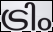
ട്രിം